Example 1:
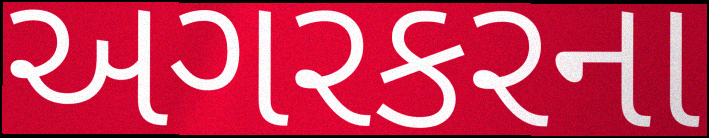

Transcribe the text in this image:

અગરકરના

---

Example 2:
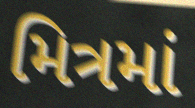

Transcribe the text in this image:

મિત્રમાં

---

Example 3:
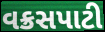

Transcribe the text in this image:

વક્રસપાટી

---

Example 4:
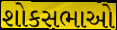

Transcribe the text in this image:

શોકસભાઓ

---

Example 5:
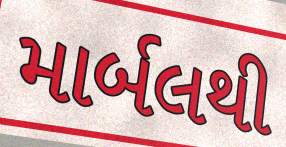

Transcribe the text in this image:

માર્બલથી